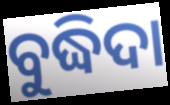
ବୁଦ୍ଧିଦା